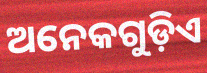
ଅନେକଗୁଡ଼ିଏ